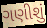
ગણીશું